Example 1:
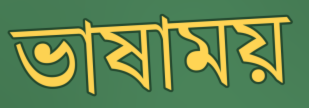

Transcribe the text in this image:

ভাষাময়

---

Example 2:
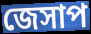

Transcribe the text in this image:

জেসাপ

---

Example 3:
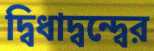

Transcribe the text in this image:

দ্বিধাদ্বন্দ্বের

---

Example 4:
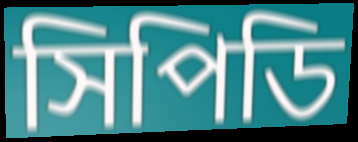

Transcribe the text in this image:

সিপিডি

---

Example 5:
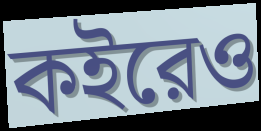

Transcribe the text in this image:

কইরেও